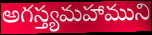
అగస్త్యమహాముని